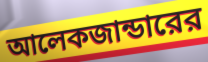
আলেকজান্ডারের